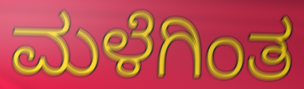
ಮಳೆಗಿಂತ